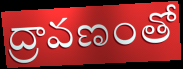
ద్రావణంతో